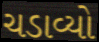
ચડાવ્યો